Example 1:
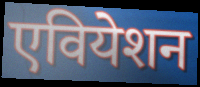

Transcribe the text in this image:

एवियेशन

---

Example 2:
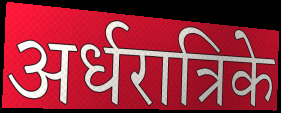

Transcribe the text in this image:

अर्धरात्रिके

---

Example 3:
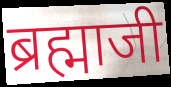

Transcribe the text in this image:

ब्रह्माजी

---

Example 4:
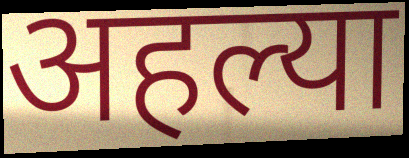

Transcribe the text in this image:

अहल्या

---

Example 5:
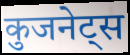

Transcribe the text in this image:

कुजनेट्स